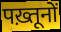
पख़्तूनों